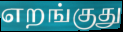
எறங்குது